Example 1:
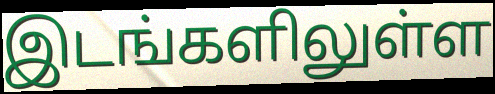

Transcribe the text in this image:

இடங்களிலுள்ள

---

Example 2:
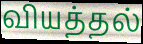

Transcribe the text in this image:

வியத்தல்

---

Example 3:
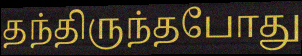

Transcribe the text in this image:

தந்திருந்தபோது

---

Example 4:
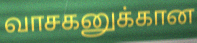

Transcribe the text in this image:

வாசகனுக்கான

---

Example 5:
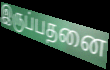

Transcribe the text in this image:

இருப்பதனை